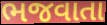
ભજવાતા